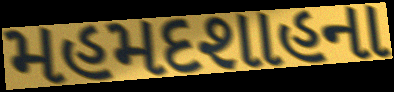
મહમદશાહના